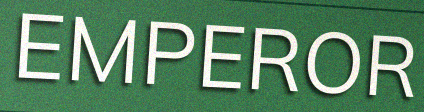
EMPEROR